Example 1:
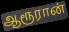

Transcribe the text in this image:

ஆரூரான்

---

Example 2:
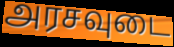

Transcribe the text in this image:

அரசவுடை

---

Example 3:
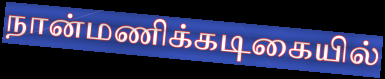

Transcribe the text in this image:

நான்மணிக்கடிகையில்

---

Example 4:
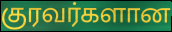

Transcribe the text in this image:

குரவர்களான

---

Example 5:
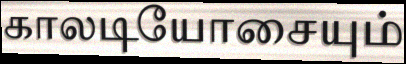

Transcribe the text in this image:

காலடியோசையும்